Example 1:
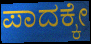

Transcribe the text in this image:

ಪಾದಕ್ಕೇ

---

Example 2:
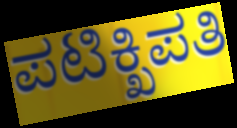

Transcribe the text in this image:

ಪಟಿಕ್ಖಿಪತಿ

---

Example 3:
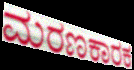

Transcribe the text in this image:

ಮರಣಕಾರಕ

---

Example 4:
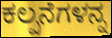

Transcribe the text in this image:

ಕಲ್ಪನೆಗಳನ್ನ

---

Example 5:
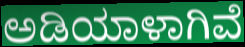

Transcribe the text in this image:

ಅಡಿಯಾಳಾಗಿವೆ